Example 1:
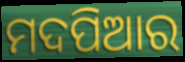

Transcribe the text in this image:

ମଦପିଆର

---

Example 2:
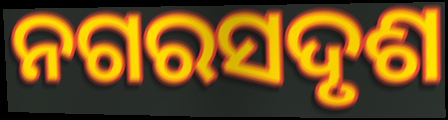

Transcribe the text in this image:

ନଗରସଦୃଶ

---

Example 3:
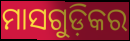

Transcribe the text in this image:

ମାସଗୁଡ଼ିକର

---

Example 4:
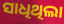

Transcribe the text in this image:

ସାଧିଥିଲା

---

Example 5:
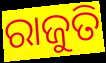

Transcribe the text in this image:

ରାଜୁତି